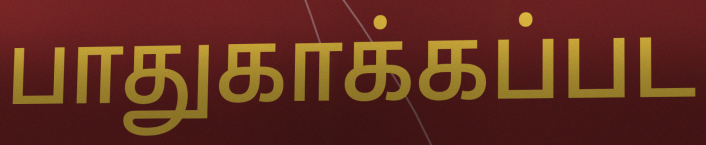
பாதுகாக்கப்பட